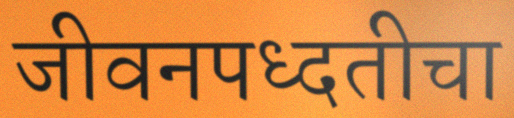
जीवनपध्दतीचा